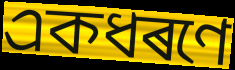
একধৰণে